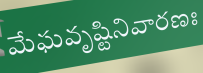
మేఘవృష్టినివారణః